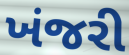
ખંજરી